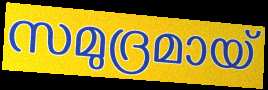
സമുദ്രമായ്